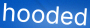
hooded